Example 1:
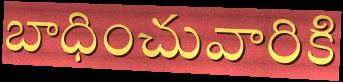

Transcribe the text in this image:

బాధించువారికి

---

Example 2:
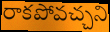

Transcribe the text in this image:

రాకపోవచ్చని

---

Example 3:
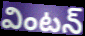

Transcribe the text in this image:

వింటన్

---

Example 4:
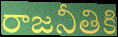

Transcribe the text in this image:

రాజనీతికి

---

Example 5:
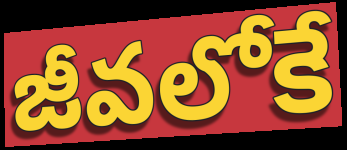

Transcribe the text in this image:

జీవలోకే